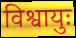
विश्वायुः